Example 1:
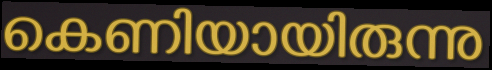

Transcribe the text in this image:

കെണിയായിരുന്നു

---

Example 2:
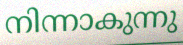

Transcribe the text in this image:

നിന്നാകുന്നു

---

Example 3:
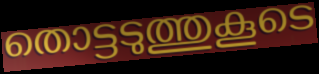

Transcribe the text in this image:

തൊട്ടടുത്തുകൂടെ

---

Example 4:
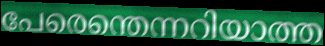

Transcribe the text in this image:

പേരെന്തെന്നറിയാത്ത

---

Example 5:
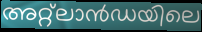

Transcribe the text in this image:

അറ്റ്ലാൻഡയിലെ